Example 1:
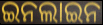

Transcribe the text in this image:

ଇନଲାଇନ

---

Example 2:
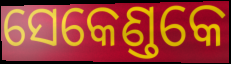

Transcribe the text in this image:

ସେକେଣ୍ଡକେ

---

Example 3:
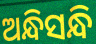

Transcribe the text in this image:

ଅନ୍ଧିସନ୍ଧି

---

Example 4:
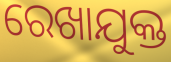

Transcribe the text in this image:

ରେଖାଯୁକ୍ତ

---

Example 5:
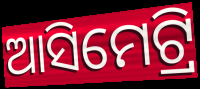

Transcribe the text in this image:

ଆସିମେଟ୍ରି